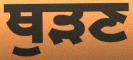
ਥੁੜਣ